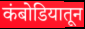
कंबोडियातून